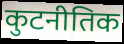
कुटनीतिक